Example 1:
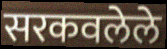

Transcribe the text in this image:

सरकवलेले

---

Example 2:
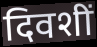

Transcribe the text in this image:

दिवशीं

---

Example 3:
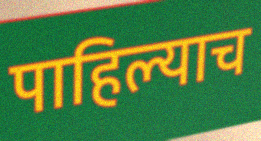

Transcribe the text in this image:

पाहिल्याच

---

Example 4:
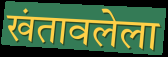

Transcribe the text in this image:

खंतावलेला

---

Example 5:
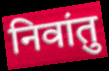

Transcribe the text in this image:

निवांतु